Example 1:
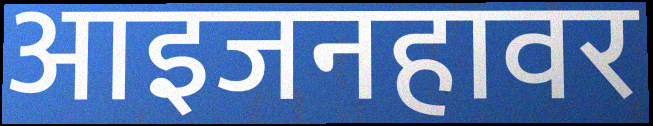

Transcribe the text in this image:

आइजनहावर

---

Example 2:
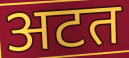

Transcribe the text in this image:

अटत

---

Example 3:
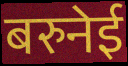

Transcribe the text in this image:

बरुनेई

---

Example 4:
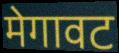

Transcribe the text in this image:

मेगावट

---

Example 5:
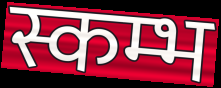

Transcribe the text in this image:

स्कम्भ